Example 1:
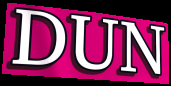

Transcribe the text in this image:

DUN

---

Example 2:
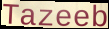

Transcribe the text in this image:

Tazeeb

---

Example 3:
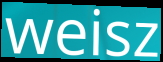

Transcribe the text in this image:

weisz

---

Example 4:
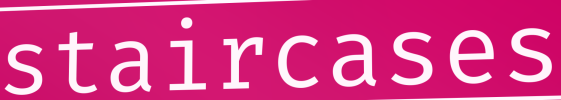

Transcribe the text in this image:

staircases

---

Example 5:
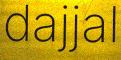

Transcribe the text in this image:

dajjal